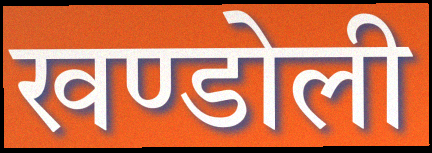
खण्डोली